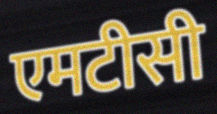
एमटीसी